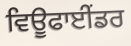
ਵਿਊਫਾਈਂਡਰ